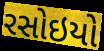
રસોઇયો